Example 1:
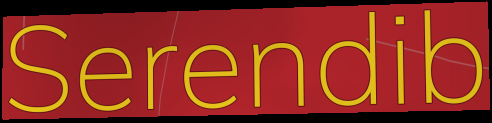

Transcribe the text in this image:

Serendib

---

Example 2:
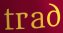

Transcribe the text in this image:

trad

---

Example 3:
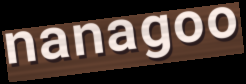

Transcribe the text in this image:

nanagoo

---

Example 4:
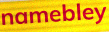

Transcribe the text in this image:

namebley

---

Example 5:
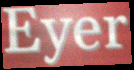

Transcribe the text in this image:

Eyer